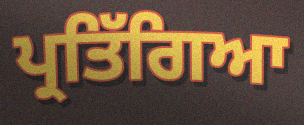
ਪ੍ਰਤਿੱਗਿਆ